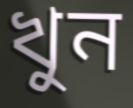
খুন